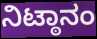
ನಿಟ್ಠಾನಂ